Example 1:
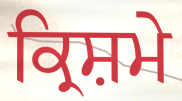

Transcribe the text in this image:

ਕ੍ਰਿਸ਼ਮੇ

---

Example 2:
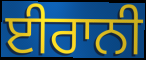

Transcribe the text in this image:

ਈਰਾਨੀ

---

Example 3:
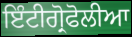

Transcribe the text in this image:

ਇੰਟੀਗ੍ਰੋਫੋਲੀਆ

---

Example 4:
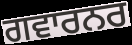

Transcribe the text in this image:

ਗਵਾਰਨਰ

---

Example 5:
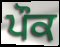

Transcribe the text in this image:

ਪੌਕ